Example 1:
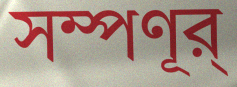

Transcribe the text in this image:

সম্পণূর্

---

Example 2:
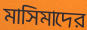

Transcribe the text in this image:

মাসিমাদের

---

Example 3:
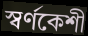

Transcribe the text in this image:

স্বর্ণকেশী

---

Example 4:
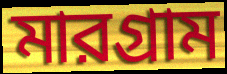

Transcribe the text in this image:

মারগ্রাম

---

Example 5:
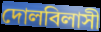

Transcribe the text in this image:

দোলবিলাসী